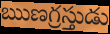
ఋణగ్రస్తుడు